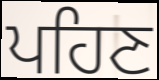
ਪਹਿਣ